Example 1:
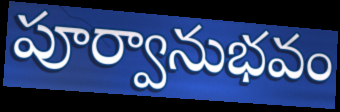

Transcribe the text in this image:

పూర్వానుభవం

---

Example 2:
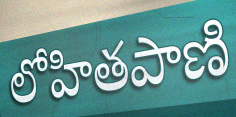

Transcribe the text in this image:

లోహితపాణి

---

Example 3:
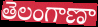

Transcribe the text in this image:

తెలంగాణా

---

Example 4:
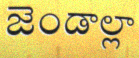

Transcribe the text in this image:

జెండాల్లా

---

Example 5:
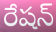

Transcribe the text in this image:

రేషన్